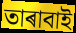
তাৰাবাই